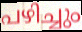
പഴിച്ചും